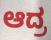
ಆದ್ರ